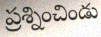
ప్రశ్నించిండు